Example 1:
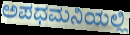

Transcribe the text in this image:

ಅಪಧಮನಿಯಲ್ಲಿ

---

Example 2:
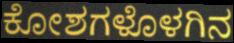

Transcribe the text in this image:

ಕೋಶಗಳೊಳಗಿನ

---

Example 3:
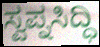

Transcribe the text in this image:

ಸ್ವಪ್ನಸಿದ್ಧಿ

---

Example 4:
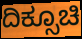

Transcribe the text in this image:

ದಿಕ್ಸೂಚಿ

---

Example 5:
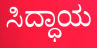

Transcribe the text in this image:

ಸಿದ್ಧಾಯ